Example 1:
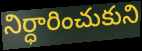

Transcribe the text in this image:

నిర్ధారించుకుని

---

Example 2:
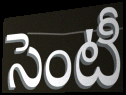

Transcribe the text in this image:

సెంటీ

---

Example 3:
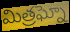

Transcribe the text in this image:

మిత్రఘ్నో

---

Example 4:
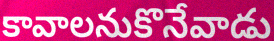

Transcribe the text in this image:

కావాలనుకొనేవాడు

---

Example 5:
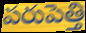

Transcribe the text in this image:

పరుపెత్తి